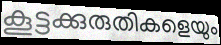
കൂട്ടക്കുരുതികളെയും